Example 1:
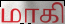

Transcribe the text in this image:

மாகி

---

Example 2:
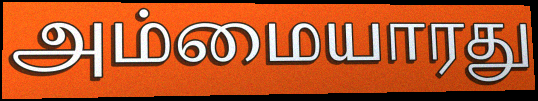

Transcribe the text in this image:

அம்மையாரது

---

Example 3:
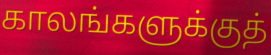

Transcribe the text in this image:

காலங்களுக்குத்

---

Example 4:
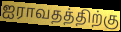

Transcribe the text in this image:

ஐராவதத்திற்கு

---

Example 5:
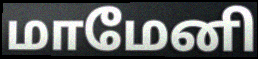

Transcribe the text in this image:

மாமேனி